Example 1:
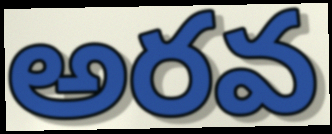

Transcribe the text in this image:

అరవ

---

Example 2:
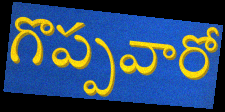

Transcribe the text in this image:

గొప్పవారో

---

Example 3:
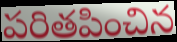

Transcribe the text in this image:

పరితపించిన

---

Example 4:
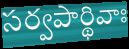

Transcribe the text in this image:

సర్వపార్థివాః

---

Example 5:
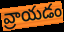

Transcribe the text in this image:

వ్రాయడం